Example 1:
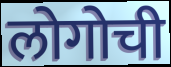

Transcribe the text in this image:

लोगोची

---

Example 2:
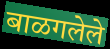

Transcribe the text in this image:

बाळगलेले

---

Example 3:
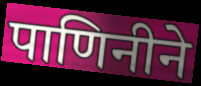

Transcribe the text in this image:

पाणिनीने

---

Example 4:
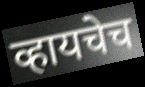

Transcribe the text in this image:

व्हायचेच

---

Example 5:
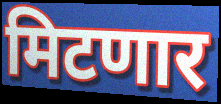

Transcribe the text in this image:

मिटणार